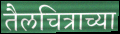
तैलचित्राच्या